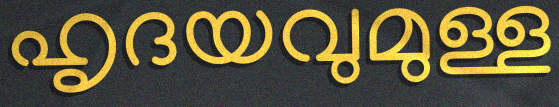
ഹൃദയവുമുള്ള